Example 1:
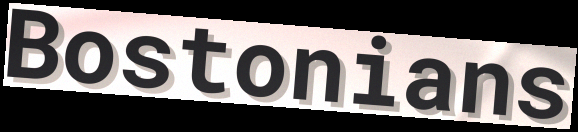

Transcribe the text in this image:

Bostonians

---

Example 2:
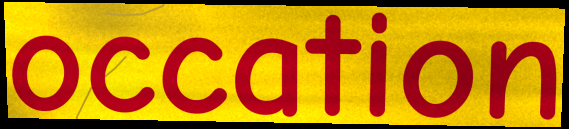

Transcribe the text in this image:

occation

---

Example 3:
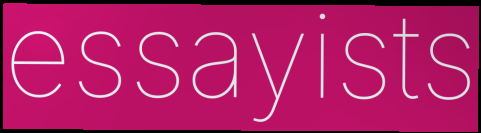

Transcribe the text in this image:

essayists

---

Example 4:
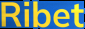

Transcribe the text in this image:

Ribet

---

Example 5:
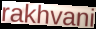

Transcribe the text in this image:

rakhvani